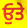
ਓੁਤੇ